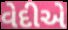
વેદીએ